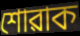
শোৱাক